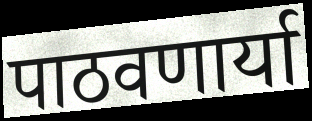
पाठवणार्या